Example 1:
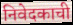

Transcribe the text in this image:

निवेदकाची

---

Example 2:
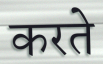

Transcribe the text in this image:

करते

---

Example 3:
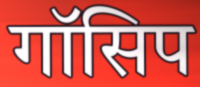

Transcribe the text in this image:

गॉसिप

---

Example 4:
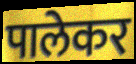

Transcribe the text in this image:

पालेकर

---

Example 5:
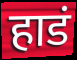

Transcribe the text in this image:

हाडं